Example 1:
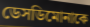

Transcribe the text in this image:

ডেসডিমোনাকে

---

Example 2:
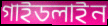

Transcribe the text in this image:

গাইডলাইন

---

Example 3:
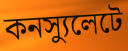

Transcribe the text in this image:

কনস্যুলেটে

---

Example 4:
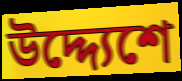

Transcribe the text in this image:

উদ্দ্যেশে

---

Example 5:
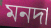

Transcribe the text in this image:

মনদা